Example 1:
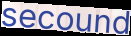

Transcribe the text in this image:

secound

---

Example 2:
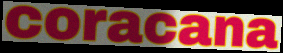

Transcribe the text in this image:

coracana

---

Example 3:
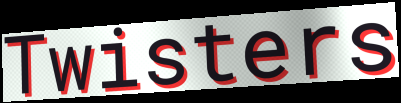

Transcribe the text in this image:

Twisters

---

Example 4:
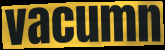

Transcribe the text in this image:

vacumn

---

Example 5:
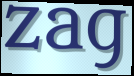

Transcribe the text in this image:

zag